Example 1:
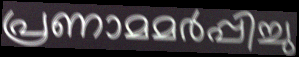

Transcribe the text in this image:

പ്രണാമമർപ്പിച്ചു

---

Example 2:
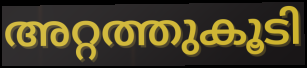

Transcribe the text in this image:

അറ്റത്തുകൂടി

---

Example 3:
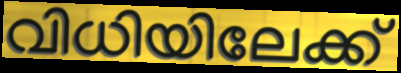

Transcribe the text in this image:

വിധിയിലേക്ക്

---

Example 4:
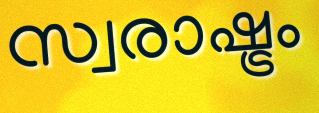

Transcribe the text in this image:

സ്വരാഷ്ട്രം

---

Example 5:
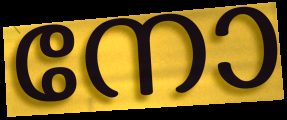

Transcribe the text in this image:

നോ